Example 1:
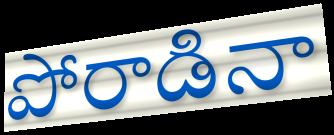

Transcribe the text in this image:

పోరాడినా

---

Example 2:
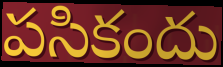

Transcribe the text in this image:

పసికందు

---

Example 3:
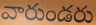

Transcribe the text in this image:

వారుండరు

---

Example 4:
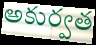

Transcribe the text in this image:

అకుర్వత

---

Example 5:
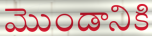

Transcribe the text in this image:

మొండానికి